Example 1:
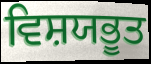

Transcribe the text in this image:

ਵਿਸ਼ਯਭੂਤ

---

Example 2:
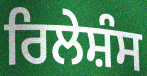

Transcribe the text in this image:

ਰਿਲੇਸ਼ੰਸ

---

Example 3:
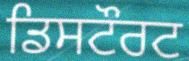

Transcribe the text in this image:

ਡਿਸਟੌਰਟ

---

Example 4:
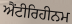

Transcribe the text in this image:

ਐਂਟੀਰਿਹੀਨਮ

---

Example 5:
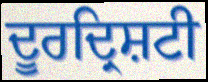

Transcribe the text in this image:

ਦੂਰਦ੍ਰਿਸ਼ਟੀ